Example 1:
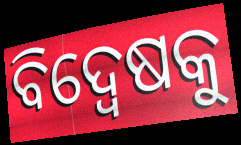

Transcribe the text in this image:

ବିଦ୍ବେଷକୁ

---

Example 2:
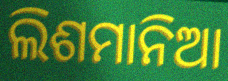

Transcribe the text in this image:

ଲିଶମାନିଆ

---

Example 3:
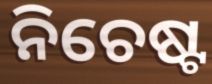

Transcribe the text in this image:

ନିଚେଷ୍ଟ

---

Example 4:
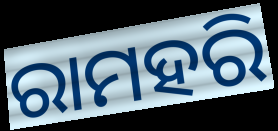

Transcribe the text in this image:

ରାମହରି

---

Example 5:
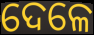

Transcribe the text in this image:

ଦେଳେ